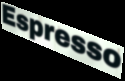
Espresso